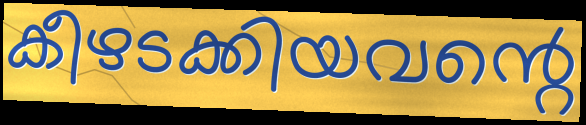
കീഴടക്കിയവന്റെ